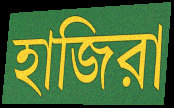
হাজিরা